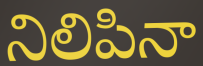
నిలిపినా